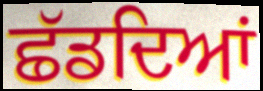
ਛੱਡਦਿਆਂ